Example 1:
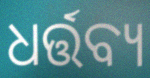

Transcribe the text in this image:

ଧର୍ତ୍ତବ୍ୟ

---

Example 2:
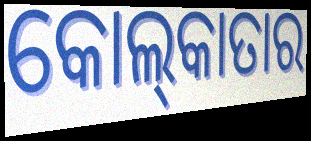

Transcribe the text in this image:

କୋଲ୍‍କାତାର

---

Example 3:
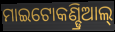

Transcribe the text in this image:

ମାଇଟୋକଣ୍ଡ୍ରିଆଲ୍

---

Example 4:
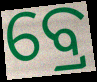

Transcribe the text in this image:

ବ୍ରେ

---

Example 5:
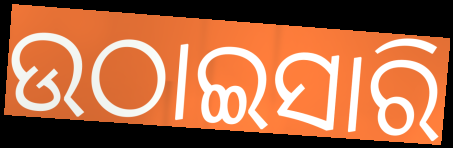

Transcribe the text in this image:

ଉଠାଇସାରି